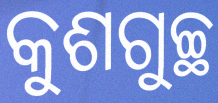
କୁଶଗୁଚ୍ଛ